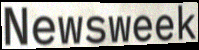
Newsweek